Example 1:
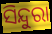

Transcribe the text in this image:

ସିନ୍ଦୁରା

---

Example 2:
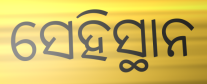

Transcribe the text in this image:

ସେହିସ୍ଥାନ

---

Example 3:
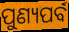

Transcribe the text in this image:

ପୁଣ୍ୟପର୍ବ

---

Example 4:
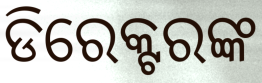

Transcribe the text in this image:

ଡିରେକ୍ଟରଙ୍କ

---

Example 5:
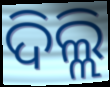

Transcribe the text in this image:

ଦିଲ୍ଲି